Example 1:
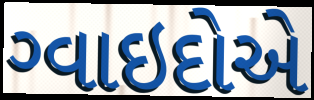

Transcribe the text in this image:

ગ્વાઇદોએ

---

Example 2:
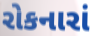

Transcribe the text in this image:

રોકનારાં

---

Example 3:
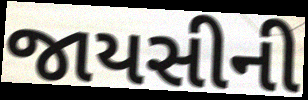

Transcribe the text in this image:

જાયસીની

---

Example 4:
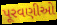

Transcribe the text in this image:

પૂરવણીઓ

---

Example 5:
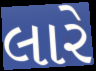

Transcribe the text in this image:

લારે